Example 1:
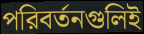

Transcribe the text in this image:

পরিবর্তনগুলিই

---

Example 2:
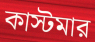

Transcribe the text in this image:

কাস্টমার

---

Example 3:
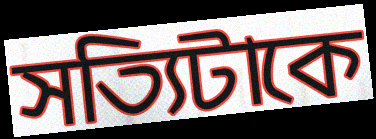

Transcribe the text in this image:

সত্যিটাকে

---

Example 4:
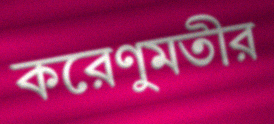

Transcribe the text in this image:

করেণুমতীর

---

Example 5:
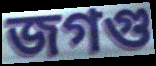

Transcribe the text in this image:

জগগু